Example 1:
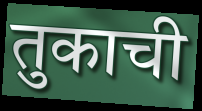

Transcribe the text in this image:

तुकाची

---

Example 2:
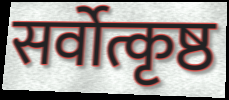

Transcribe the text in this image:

सर्वोत्कृष्ठ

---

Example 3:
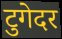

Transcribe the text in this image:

टुगेदर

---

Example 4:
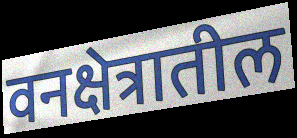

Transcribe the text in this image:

वनक्षेत्रातील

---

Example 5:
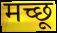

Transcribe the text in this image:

मच्छू